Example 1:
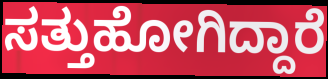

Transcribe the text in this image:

ಸತ್ತುಹೋಗಿದ್ದಾರೆ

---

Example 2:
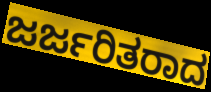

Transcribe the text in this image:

ಜರ್ಜರಿತರಾದ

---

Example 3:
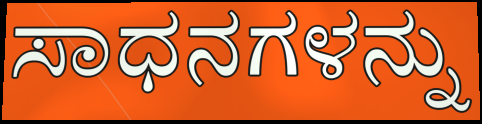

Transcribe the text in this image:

ಸಾಧನಗಳನ್ನು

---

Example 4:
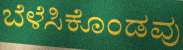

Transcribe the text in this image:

ಬೆಳೆಸಿಕೊಂಡವು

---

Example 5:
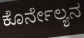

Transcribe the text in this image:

ಕೊರ್ನೇಲ್ಯನ